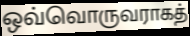
ஒவ்வொருவராகத்